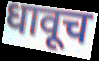
धावूच